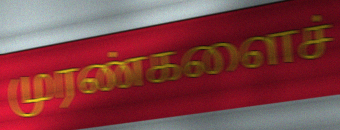
முரண்களைச்